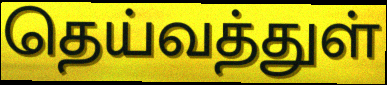
தெய்வத்துள்